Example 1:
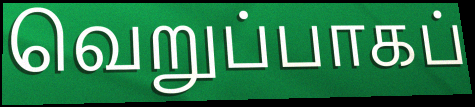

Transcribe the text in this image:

வெறுப்பாகப்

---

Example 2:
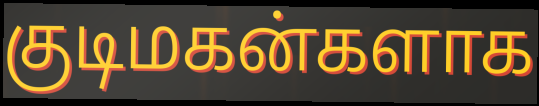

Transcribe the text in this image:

குடிமகன்களாக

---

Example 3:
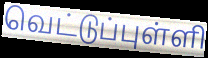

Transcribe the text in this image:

வெட்டுப்புள்ளி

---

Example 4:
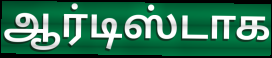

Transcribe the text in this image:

ஆர்டிஸ்டாக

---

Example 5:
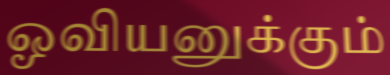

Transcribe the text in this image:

ஓவியனுக்கும்